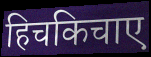
हिचकिचाए